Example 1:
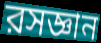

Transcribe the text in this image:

রসজ্ঞান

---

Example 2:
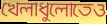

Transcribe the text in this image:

খেলাধুলোতেও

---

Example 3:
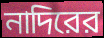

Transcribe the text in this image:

নাদিরের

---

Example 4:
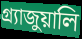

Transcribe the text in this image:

গ্র্যাজুয়ালি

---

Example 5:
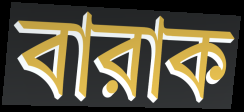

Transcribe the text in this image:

বারাক